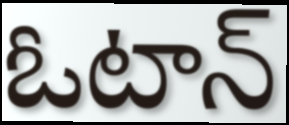
ఓటాన్